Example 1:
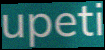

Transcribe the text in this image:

upeti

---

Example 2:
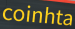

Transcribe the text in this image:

coinhta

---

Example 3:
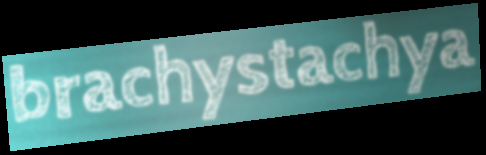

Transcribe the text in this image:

brachystachya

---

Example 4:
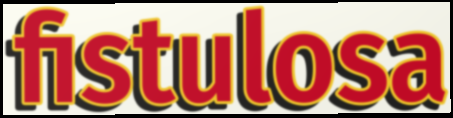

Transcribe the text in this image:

fistulosa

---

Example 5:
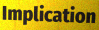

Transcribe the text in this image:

Implication